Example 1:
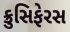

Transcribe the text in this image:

ક્રુસિફેરસ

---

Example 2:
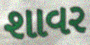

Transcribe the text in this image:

શાવર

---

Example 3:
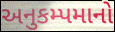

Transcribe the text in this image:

અનુકમ્પમાનો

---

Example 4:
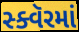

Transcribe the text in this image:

સ્ક્વૅરમાં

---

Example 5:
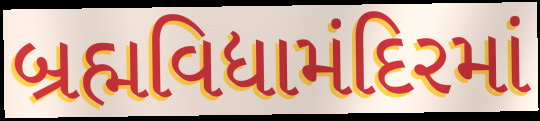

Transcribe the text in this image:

બ્રહ્મવિદ્યામંદિરમાં